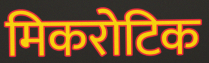
मिकरोटिक